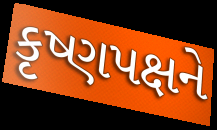
કૃષ્ણપક્ષને